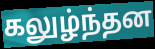
கலுழ்ந்தன